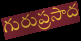
గురుప్రసాద